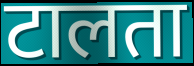
टालता